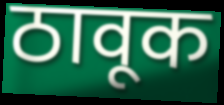
ठावूक